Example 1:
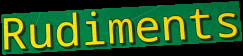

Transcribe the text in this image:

Rudiments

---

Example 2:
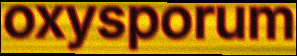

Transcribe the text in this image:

oxysporum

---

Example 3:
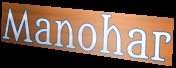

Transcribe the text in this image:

Manohar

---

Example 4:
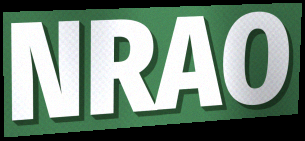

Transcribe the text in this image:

NRAO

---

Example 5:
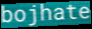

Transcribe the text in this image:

bojhate